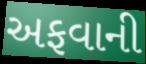
અફવાની